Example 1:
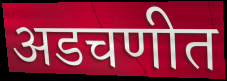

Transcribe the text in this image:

अडचणीत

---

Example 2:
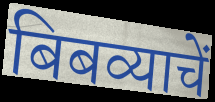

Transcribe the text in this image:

बिबव्याचें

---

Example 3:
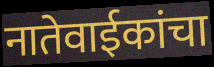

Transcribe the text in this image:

नातेवाईकांचा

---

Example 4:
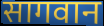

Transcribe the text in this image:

सागवान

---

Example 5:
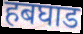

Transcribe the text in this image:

हबघाड